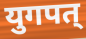
युगपत्